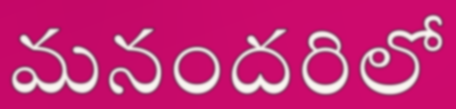
మనందరిలో